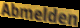
Abmelden